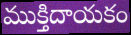
ముక్తిదాయకం